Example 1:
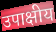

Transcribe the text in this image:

उपाक्षीय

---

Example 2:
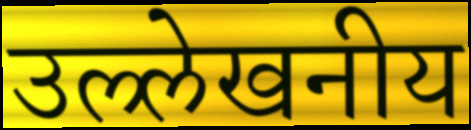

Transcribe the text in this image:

उल्लेखनीय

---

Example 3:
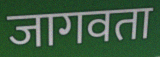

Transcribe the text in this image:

जागवता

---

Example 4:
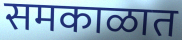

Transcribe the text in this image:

समकाळात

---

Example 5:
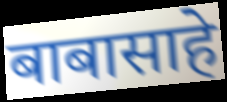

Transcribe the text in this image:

बाबासाहे